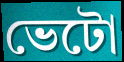
ভেটো